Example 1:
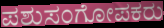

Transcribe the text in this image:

ಪಶುಸಂಗೋಪಕರು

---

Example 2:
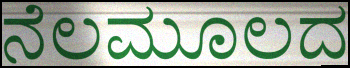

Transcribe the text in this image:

ನೆಲಮೂಲದ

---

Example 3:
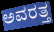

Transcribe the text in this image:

ಅವರತ್ತ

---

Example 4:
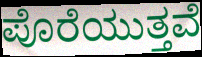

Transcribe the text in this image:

ಪೊರೆಯುತ್ತವೆ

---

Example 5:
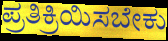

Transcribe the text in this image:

ಪ್ರತಿಕ್ರಿಯಿಸಬೇಕು